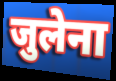
जुलेना